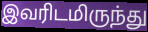
இவரிடமிருந்து